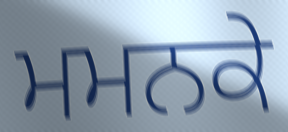
ਮਮਨਕੇ